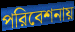
পরিবেশনায়